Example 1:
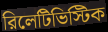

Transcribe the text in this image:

রিলেটিভিস্টিক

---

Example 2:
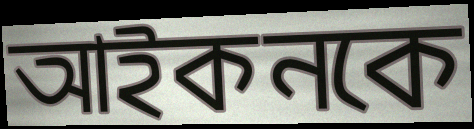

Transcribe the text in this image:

আইকনকে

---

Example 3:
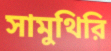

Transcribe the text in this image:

সামুথিরি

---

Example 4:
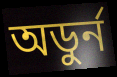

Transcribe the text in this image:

অডুর্ন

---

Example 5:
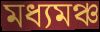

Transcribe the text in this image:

মধ্যমঞ্চ